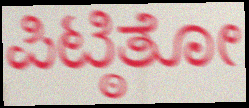
ಪಿಟ್ಠಿತೋ